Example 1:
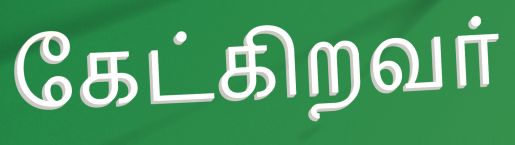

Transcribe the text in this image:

கேட்கிறவர்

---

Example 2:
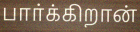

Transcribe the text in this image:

பார்க்கிறான்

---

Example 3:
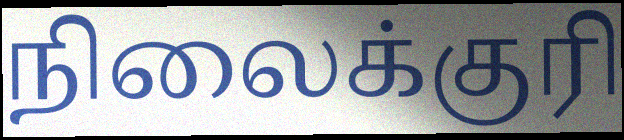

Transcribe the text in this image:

நிலைக்குரி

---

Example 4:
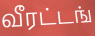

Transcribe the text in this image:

வீரட்டங்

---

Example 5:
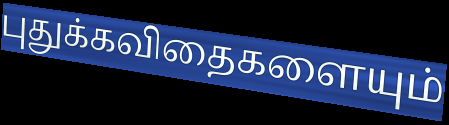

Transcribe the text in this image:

புதுக்கவிதைகளையும்